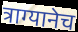
त्राग्यानेच